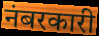
नंबरकारी